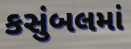
કસુંબલમાં